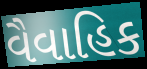
વૈવાહિક